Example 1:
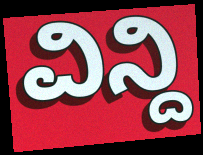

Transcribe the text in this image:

ವಿನ್ದಿ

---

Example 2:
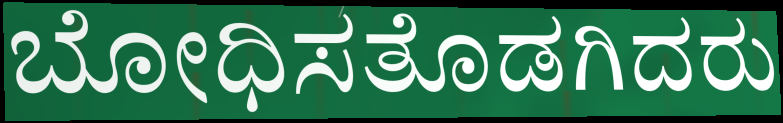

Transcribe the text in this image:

ಬೋಧಿಸತೊಡಗಿದರು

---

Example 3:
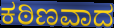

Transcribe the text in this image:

ಕಠಿಣವಾದ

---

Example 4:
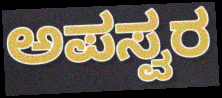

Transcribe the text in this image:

ಅಪಸ್ವರ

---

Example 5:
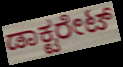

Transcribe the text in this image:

ಡಾಕ್ಟರೇಟ್